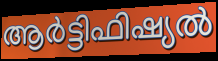
ആർട്ടിഫിഷ്യൽ